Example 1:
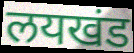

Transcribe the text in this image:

लयखंड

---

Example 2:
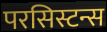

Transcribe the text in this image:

परसिस्टन्स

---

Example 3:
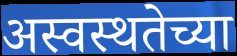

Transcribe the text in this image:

अस्वस्थतेच्या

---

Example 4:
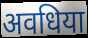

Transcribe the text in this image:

अवधिया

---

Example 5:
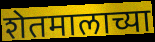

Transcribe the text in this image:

शेतमालाच्या